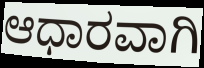
ಆಧಾರವಾಗಿ